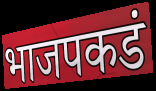
भाजपकडं